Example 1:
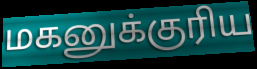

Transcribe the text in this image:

மகனுக்குரிய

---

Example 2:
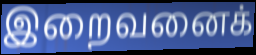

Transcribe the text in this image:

இறைவனைக்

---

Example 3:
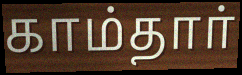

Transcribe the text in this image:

காம்தார்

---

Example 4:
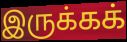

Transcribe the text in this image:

இருக்கக்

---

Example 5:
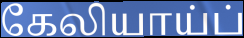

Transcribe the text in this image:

கேலியாய்ப்